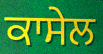
ਕਾਸੇਲ